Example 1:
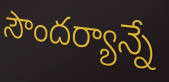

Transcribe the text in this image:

సౌందర్యాన్నే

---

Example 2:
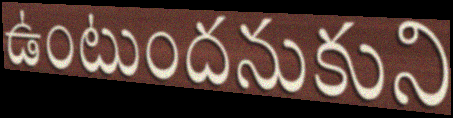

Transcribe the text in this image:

ఉంటుందనుకుని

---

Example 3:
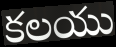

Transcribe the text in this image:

కలయు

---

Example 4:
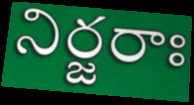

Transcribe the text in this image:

నిర్జరాః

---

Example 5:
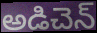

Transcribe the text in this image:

అడిచెన్